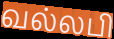
வல்லபி